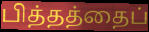
பித்தத்தைப்